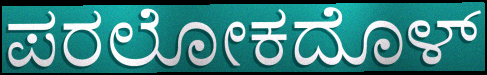
ಪರಲೋಕದೊಳ್